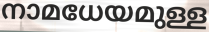
നാമധേയമുള്ള